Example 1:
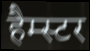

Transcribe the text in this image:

हैम्स्टर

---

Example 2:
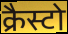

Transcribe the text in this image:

क्रैस्टो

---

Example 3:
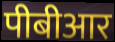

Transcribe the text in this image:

पीबीआर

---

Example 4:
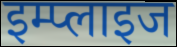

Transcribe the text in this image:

इम्प्लाइज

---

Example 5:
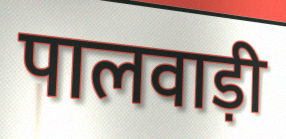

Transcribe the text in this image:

पालवाड़ी